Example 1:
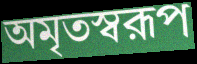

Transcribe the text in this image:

অমৃতস্বরূপ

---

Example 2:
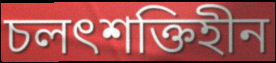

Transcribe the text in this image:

চলৎশক্তিহীন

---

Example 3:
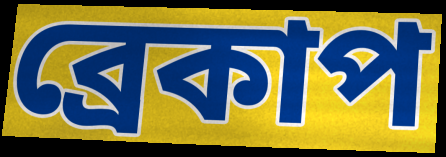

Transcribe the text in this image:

ব্রেকাপ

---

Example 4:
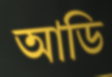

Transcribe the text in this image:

আডি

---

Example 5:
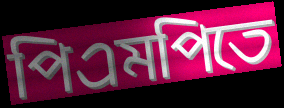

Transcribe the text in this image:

পিএমপিতে